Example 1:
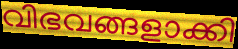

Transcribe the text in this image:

വിഭവങ്ങളാക്കി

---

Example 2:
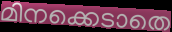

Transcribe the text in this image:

മിനക്കെടാതെ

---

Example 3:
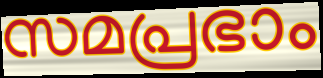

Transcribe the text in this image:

സമപ്രഭാം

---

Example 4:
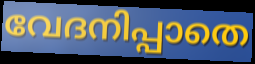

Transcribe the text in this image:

വേദനിപ്പാതെ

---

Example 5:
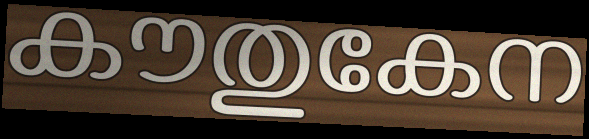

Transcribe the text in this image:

കൗതുകേന